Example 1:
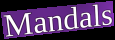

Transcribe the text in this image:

Mandals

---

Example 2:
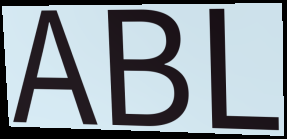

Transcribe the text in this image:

ABL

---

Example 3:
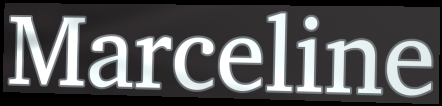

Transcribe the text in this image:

Marceline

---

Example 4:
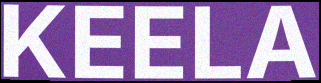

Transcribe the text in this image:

KEELA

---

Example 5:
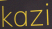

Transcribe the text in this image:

kazi